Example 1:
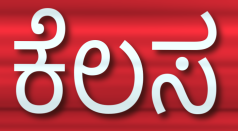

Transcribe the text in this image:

ಕೆಲಸ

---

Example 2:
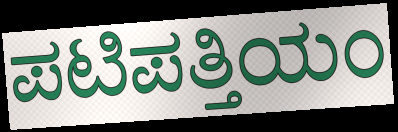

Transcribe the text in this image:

ಪಟಿಪತ್ತಿಯಂ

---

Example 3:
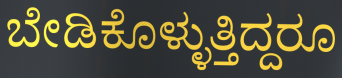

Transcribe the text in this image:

ಬೇಡಿಕೊಳ್ಳುತ್ತಿದ್ದರೂ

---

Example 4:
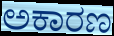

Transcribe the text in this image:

ಅಕಾರಣ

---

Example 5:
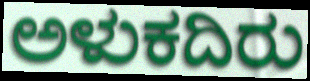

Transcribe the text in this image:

ಅಳುಕದಿರು